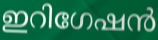
ഇറിഗേഷൻ